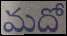
మదో